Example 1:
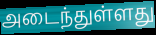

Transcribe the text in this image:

அடைந்துள்ளது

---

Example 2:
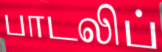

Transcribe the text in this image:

பாடலிப்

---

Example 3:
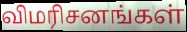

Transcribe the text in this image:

விமரிசனங்கள்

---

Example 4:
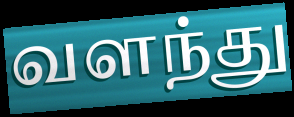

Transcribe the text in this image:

வளந்து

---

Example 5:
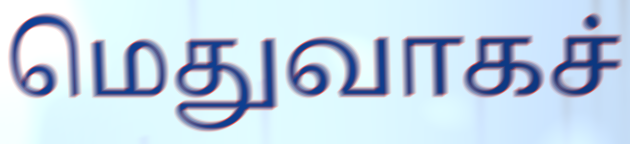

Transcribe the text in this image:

மெதுவாகச்